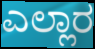
ಎಲ್ಲಾರ